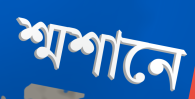
শ্মশানে